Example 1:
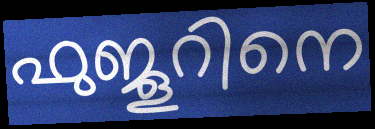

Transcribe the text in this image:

ഫുജൂറിനെ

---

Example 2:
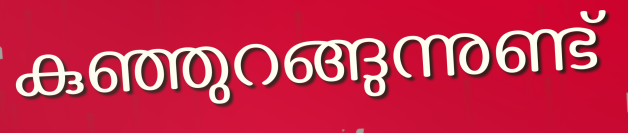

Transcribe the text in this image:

കുഞ്ഞുറങ്ങുന്നുണ്ട്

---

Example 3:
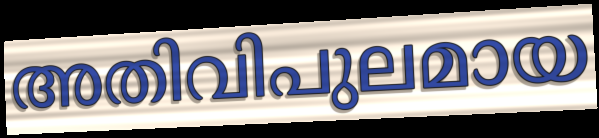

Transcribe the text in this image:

അതിവിപുലമായ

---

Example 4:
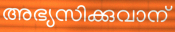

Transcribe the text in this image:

അഭ്യസിക്കുവാന്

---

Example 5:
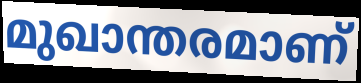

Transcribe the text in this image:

മുഖാന്തരമാണ്